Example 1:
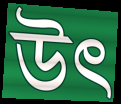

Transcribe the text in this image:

উৎ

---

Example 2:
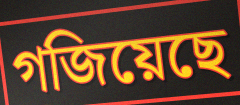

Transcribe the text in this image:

গজিয়েছে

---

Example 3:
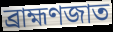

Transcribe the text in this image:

ব্রাহ্মণজাত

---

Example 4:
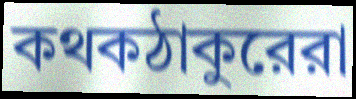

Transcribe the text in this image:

কথকঠাকুরেরা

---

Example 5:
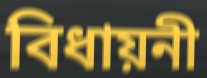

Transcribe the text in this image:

বিধায়নী